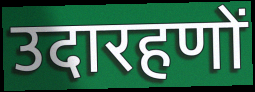
उदारहणों